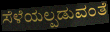
ಸೆಳೆಯಲ್ಪಡುವಂತೆ